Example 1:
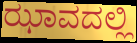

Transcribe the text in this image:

ಝಾವದಲ್ಲಿ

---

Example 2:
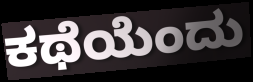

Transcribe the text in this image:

ಕಥೆಯೆಂದು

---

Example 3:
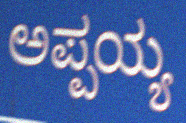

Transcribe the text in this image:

ಅಪ್ಪಯ್ಯ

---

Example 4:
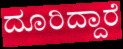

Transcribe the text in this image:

ದೂರಿದ್ದಾರೆ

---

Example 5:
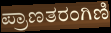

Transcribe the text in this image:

ಪ್ರಾಣತರಂಗಿಣಿ